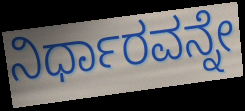
ನಿರ್ಧಾರವನ್ನೇ